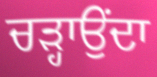
ਚੜ੍ਹਾਉਂਦਾ